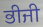
ਭੀਜੀ